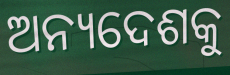
ଅନ୍ୟଦେଶକୁ